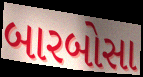
બારબોસા